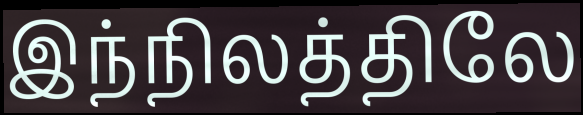
இந்நிலத்திலே